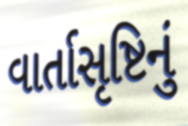
વાર્તાસૃષ્ટિનું